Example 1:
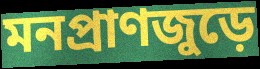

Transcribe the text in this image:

মনপ্রাণজুড়ে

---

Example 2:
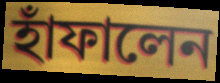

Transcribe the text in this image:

হাঁফালেন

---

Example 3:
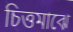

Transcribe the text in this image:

চিত্তমাঝে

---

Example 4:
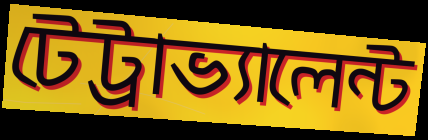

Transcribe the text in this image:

টেট্রাভ্যালেন্ট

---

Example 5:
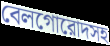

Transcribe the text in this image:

বেলগোরোদসহ